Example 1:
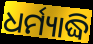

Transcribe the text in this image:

ଧର୍ମ୍ୟାଦ୍ଧି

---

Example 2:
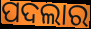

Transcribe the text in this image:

ପଦଲାର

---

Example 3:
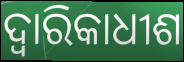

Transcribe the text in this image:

ଦ୍ୱାରିକାଧୀଶ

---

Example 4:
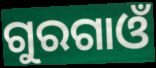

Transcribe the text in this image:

ଗୁରଗାଓଁ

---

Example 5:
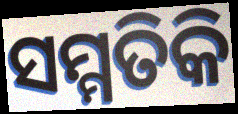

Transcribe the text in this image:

ସମ୍ମତିକି